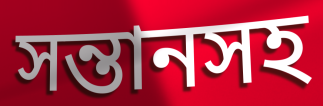
সন্তানসহ